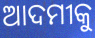
ଆଦମୀକୁ